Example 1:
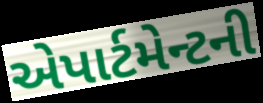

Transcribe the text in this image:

એપાર્ટમેન્ટની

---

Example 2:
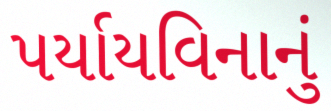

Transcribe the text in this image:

પર્યાયવિનાનું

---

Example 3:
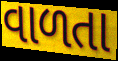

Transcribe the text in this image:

વાળતા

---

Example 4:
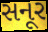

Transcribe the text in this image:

સનૂર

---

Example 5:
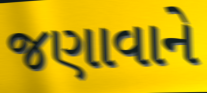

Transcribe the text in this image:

જણાવાને